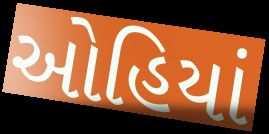
ઓહિયાં